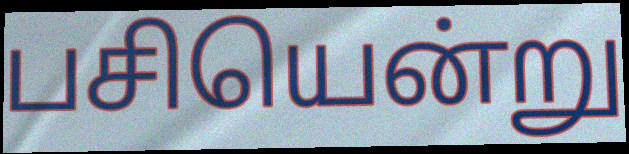
பசியென்று